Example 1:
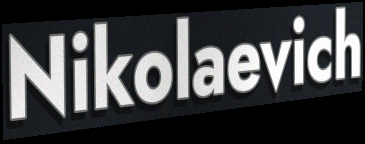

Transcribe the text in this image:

Nikolaevich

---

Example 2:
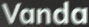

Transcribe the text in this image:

Vanda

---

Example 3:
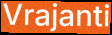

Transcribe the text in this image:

Vrajanti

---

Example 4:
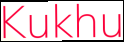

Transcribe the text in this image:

Kukhu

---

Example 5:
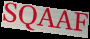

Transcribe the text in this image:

SQAAF